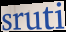
sruti